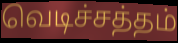
வெடிச்சத்தம்